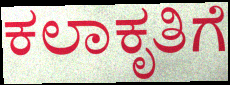
ಕಲಾಕೃತಿಗೆ